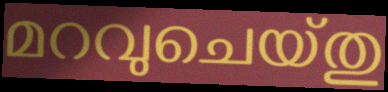
മറവുചെയ്തു